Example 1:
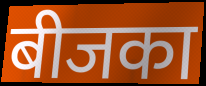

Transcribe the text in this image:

बीजका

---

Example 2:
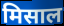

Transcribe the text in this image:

मिसाल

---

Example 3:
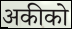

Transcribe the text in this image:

अकीको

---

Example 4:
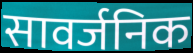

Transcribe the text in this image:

सावर्जनिक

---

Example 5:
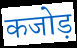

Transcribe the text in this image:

कजोड़